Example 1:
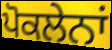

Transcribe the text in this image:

ਪੋਕਲੇਨਾਂ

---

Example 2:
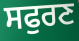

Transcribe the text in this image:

ਸਫੁਰਣ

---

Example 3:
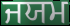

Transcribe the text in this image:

ਜਯਮ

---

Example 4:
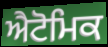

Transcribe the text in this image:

ਐਟੋਮਿਕ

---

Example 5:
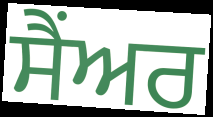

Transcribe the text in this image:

ਸੈਂਅਰ